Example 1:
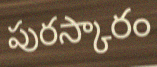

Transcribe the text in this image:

పురస్కారం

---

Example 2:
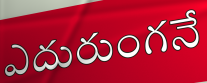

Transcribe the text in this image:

ఎదురుంగనే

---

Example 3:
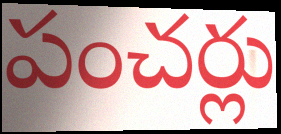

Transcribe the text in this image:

పంచర్లు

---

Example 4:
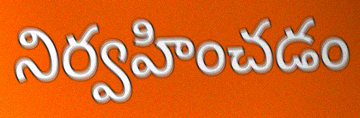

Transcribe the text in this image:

నిర్వహించడం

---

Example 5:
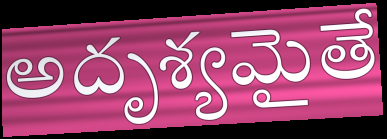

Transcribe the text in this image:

అదృశ్యమైతే